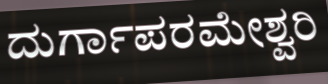
ದುರ್ಗಾಪರಮೇಶ್ವರಿ